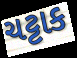
ચટ્ટાક